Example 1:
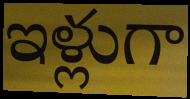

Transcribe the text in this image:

ఇళ్లుగా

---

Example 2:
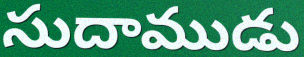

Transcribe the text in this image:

సుదాముడు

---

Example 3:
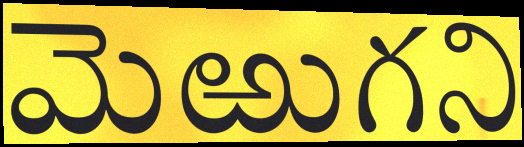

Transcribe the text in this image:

మెఱుగని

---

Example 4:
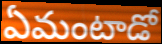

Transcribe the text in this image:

ఏమంటాడో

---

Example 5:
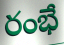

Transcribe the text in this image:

రంభే